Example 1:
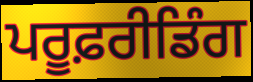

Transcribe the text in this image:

ਪਰੂਫ਼ਰੀਡਿੰਗ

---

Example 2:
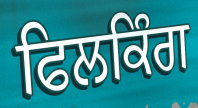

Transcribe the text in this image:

ਫਿਲਕਿੰਗ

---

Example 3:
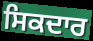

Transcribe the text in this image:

ਸਿਕਦਾਰ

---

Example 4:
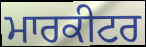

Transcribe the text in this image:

ਮਾਰਕੀਟਰ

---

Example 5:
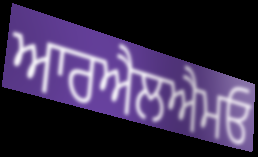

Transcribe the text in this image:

ਆਰਐਲਐਮਓ